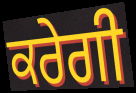
ਕਰੇਗੀ